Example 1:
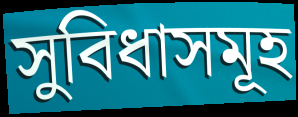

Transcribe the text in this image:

সুবিধাসমূহ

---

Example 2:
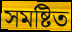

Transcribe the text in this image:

সমষ্টিত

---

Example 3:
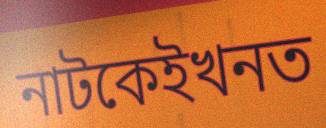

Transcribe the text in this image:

নাটকেইখনত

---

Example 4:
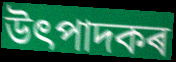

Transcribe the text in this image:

উৎপাদকৰ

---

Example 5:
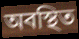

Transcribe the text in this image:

অবস্থিত